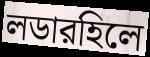
লডারহিলে